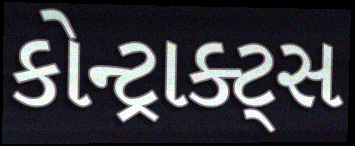
કોન્ટ્રાક્ટ્સ